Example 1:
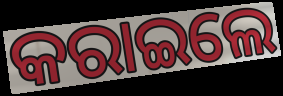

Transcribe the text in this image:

କରାଇଲେ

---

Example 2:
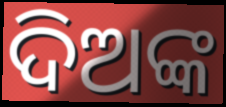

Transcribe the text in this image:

ଦିଅଙ୍କ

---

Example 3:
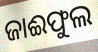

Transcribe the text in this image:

ଜାଈଫୁଲ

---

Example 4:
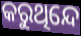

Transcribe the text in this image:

କରୁଥିନ୍ଦେ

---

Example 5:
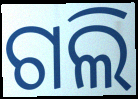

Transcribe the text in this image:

ଗଲି